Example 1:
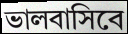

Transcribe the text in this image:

ভালবাসিবে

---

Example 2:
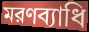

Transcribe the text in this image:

মরণব্যাধি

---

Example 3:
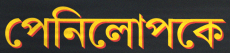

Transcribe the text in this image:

পেনিলোপকে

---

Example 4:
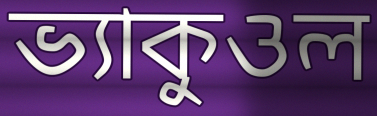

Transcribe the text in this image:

ভ্যাকুওল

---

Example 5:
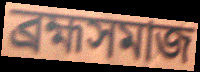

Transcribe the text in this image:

ব্রহ্মসমাজ